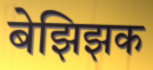
बेझिझक